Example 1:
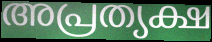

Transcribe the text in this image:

അപ്രത്യക്ഷ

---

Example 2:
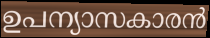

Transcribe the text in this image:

ഉപന്യാസകാരൻ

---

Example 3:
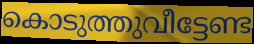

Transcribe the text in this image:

കൊടുത്തുവീട്ടേണ്ട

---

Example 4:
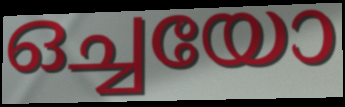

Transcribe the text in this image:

ഒച്ചയോ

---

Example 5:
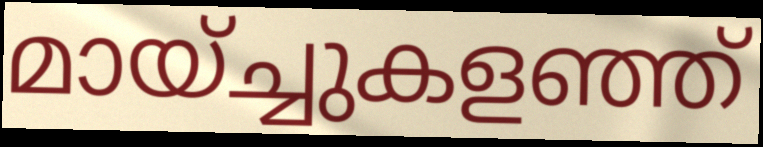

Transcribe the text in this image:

മായ്ച്ചുകളഞ്ഞ്